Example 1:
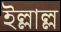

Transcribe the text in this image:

ইল্লাল্ল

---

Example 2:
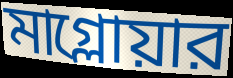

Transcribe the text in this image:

মাগ্লোয়ার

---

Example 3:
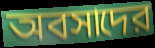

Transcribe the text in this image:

অবসাদের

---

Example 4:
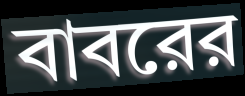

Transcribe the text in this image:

বাবরের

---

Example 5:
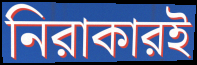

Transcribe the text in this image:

নিরাকারই